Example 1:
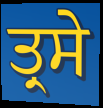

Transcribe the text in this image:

ਤ੍ਰਸੇ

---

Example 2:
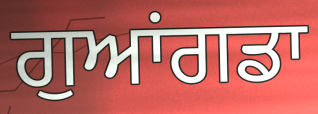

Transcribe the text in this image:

ਗੁਆਂਗਡਾ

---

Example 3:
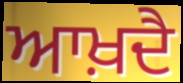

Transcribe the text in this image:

ਆਖ਼ਦੈ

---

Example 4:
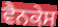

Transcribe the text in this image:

ਵੈਨਕੇਸ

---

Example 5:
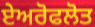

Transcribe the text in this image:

ਏਅਰੋਫਲੋਤ